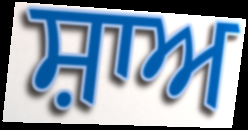
ਸ਼ਾਅ